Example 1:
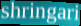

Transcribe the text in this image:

shringari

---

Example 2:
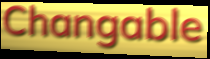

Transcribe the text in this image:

Changable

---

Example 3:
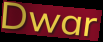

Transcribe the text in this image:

Dwar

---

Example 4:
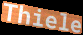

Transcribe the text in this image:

Thiele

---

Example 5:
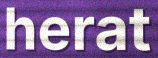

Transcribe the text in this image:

herat